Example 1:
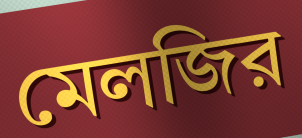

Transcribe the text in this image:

মেলজির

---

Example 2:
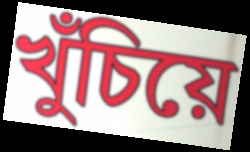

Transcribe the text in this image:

খুঁচিয়ে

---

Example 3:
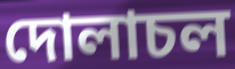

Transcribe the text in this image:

দোলাচল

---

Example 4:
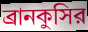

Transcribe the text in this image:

ব্রানকুসির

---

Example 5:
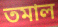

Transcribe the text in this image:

তমাল